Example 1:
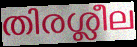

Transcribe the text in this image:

തിരശ്ലീല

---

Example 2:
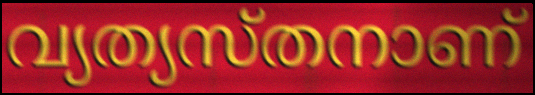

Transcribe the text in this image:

വ്യത്യസ്തനാണ്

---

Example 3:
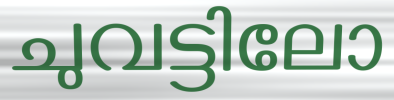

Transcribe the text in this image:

ചുവട്ടിലോ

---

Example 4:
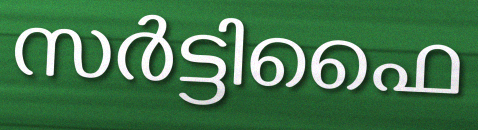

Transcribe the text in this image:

സർട്ടിഫൈ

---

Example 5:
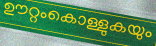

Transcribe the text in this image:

ഊറ്റംകൊള്ളുകയും